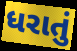
ધરાતું